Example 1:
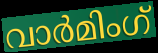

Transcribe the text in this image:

വാർമിംഗ്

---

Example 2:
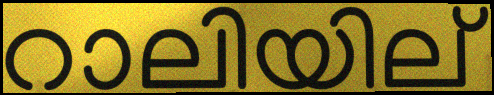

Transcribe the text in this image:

റാലിയില്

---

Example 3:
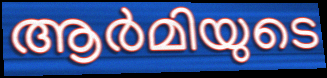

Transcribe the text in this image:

ആർമിയുടെ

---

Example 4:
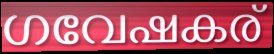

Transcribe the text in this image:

ഗവേഷകര്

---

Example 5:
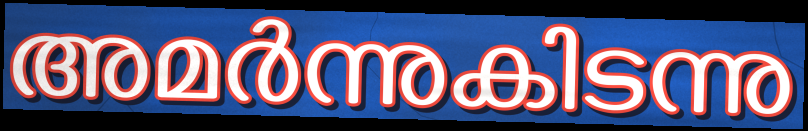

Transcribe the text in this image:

അമർന്നുകിടന്നു